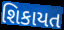
શિકાયત